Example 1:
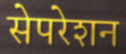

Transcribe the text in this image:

सेपरेशन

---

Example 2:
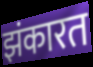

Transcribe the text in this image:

झंकारत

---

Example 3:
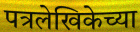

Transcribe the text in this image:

पत्रलेखिकेच्या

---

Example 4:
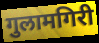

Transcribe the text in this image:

गुलामगिरी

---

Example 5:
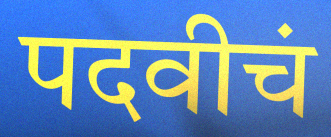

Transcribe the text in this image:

पदवीचं